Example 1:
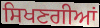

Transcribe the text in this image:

ਸਿਖਣਗੀਆਂ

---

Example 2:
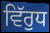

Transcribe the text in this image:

ਵਿੱਰੁਧ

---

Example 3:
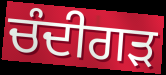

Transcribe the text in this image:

ਚੰਦੀਗੜ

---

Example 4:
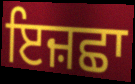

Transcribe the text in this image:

ਇਜ਼ਛਾ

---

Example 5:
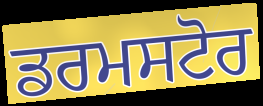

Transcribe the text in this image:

ਡਰਮਸਟੋਰ